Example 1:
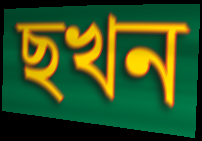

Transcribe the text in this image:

ছখন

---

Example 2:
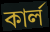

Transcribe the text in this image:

কাৰ্ল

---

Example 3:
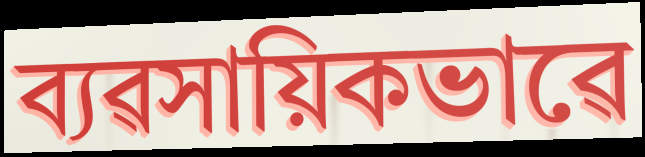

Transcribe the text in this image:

ব্যৱসায়িকভাৱে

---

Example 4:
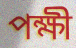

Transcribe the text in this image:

পক্ষী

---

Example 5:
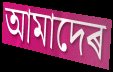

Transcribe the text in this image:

আমাদেৰ